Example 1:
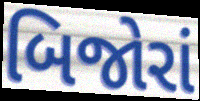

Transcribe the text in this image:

બિજોરાં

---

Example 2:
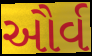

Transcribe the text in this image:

ઔર્વ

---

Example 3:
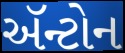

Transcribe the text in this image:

ઍન્ટોન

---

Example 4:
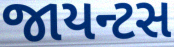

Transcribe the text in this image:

જાયન્ટસ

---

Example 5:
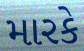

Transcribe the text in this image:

મારકે